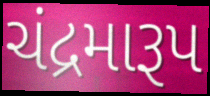
ચંદ્રમારૂપ